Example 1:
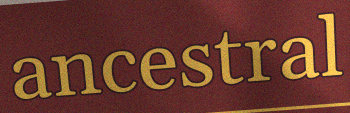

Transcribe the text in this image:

ancestral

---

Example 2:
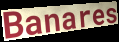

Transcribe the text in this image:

Banares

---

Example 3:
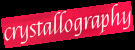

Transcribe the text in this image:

crystallography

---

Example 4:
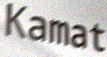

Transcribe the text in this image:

Kamat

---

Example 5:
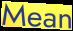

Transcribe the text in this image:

Mean